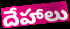
దేహాలు